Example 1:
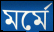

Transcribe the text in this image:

মর্মে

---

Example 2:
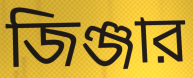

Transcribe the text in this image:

জিঞ্জার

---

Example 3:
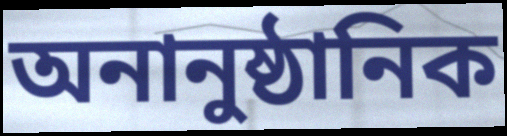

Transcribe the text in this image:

অনানুষ্ঠানিক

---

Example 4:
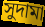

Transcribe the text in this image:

সুদামা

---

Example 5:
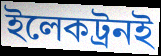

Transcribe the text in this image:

ইলেকট্রনই